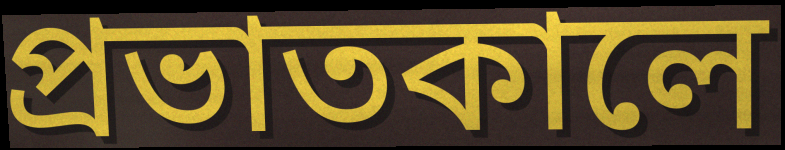
প্রভাতকালে